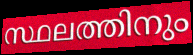
സ്ഥലത്തിനും